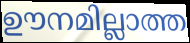
ഊനമില്ലാത്ത